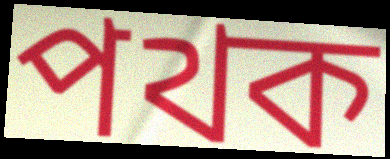
পথক